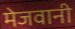
मेजवानी